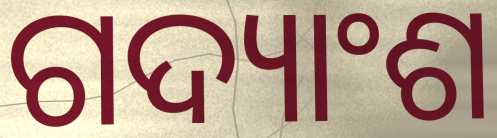
ଗଦ୍ୟାଂଶ